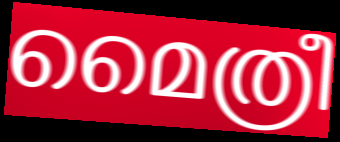
മൈത്രീ